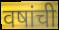
वषांची